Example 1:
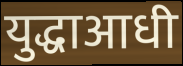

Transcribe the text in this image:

युद्धाआधी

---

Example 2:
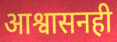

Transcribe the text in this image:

आश्वासनही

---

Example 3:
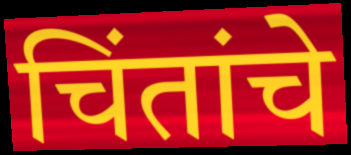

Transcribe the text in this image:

चिंतांचे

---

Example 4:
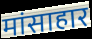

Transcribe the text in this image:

मांसाहार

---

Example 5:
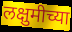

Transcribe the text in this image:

लक्षुमीच्या